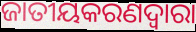
ଜାତୀୟକରଣଦ୍ୱାରା